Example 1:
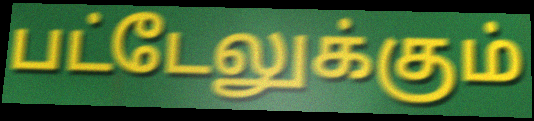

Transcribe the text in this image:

பட்டேலுக்கும்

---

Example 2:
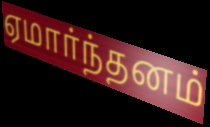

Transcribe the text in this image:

ஏமார்ந்தனம்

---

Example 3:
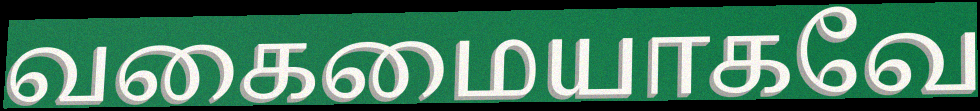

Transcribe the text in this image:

வகைமையாகவே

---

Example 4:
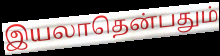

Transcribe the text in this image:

இயலாதென்பதும்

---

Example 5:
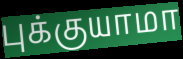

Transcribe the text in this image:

புக்குயாமா